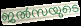
ജൽസയുടെ